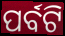
ପର୍ବଟି